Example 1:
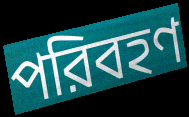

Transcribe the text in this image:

পরিবহণ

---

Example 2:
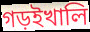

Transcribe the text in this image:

গড়ইখালি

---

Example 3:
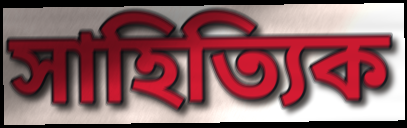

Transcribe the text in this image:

সাহিত্যিক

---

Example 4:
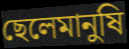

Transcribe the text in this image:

ছেলেমানুষি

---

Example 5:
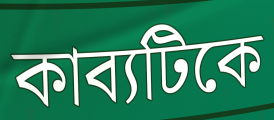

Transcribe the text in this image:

কাব্যটিকে